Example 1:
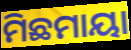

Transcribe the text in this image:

ମିଛମାୟା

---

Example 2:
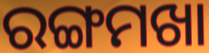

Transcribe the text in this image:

ରଙ୍ଗମଖା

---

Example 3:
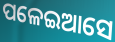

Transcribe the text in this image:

ପଳେଇଆସେ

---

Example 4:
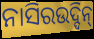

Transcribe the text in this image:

ନାସିରଉଦ୍ଦିନ୍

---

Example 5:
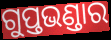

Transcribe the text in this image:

ଗୁପ୍ତଭଣ୍ଡାର